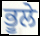
ਭੂਲੇ